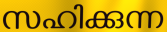
സഹിക്കുന്ന